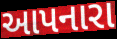
આપનારા